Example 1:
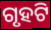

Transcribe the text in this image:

ଗୃହଟି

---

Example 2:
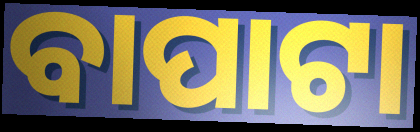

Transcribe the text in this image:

ବାପାଟା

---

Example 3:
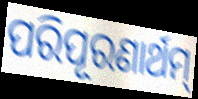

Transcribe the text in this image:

ପରିପୂରଣାର୍ଥମ୍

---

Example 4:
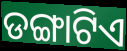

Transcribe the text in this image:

ଡଙ୍ଗାଟିଏ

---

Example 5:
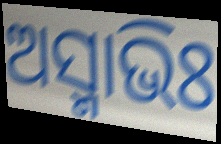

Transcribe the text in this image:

ଅସ୍ମାଭିଃ